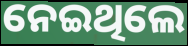
ନେଇଥିଲେ